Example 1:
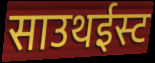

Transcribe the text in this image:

साउथईस्ट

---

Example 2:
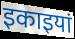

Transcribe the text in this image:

इकाइयां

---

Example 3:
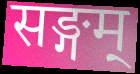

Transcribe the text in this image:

सङ्गम्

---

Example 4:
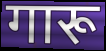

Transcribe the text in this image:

गारू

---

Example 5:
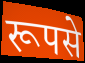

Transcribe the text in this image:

रूपसे